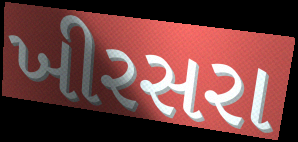
ખીરસરા